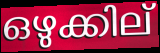
ഒഴുക്കില്